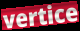
vertice